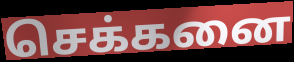
செக்கனை